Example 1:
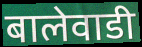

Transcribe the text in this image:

बालेवाडी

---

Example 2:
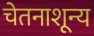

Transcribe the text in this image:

चेतनाशून्य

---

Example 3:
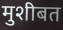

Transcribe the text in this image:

मुशीबत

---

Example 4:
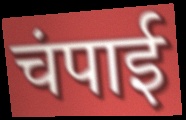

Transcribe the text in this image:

चंपाई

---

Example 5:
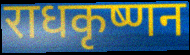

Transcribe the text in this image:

राधकृष्णन